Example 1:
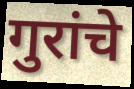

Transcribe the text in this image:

गुरांचे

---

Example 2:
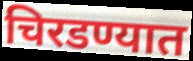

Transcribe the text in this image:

चिरडण्यात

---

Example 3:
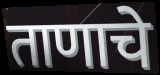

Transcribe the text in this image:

ताणाचे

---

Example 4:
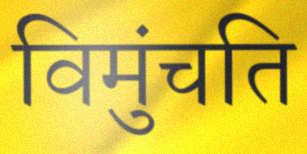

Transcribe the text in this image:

विमुंचति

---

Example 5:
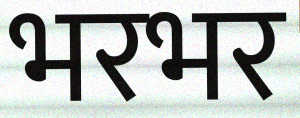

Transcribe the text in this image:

भरभर